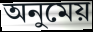
অনুমেয়